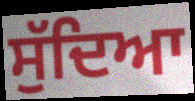
ਸੁੱਦਿਆ